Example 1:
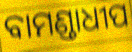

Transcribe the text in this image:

ବାମଣ୍ଡାଧୀପ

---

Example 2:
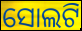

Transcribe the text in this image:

ସୋଲଟି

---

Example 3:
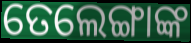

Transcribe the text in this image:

ତେଲେଙ୍ଗାଙ୍କ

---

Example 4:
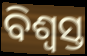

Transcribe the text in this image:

ବିଶ୍ଵସ୍ତ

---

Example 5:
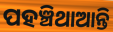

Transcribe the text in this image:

ପହଞ୍ଚିଥାଆନ୍ତି